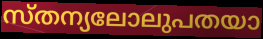
സ്തന്യലോലുപതയാ